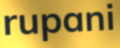
rupani